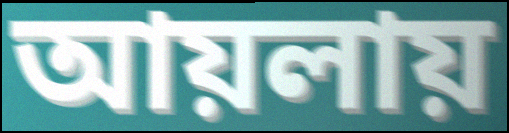
আয়লায়